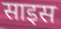
साइस